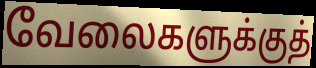
வேலைகளுக்குத்